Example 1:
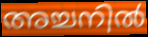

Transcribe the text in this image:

അച്ചനിൽ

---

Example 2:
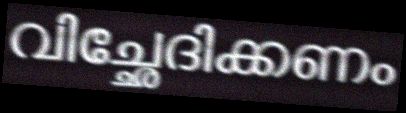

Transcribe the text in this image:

വിച്ഛേദിക്കണം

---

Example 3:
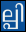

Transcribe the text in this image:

ല്പി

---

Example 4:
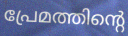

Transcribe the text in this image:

പ്രേമത്തിന്റെ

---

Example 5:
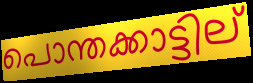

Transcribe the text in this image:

പൊന്തക്കാട്ടില്